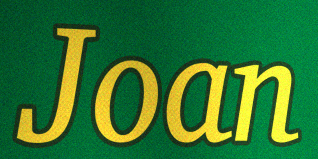
Joan